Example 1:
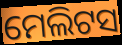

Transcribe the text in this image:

ମେଲିଟସ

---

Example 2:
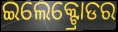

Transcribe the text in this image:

ଇଲେକ୍ଟ୍ରୋଡର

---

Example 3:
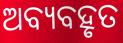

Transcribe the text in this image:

ଅବ୍ୟବହୃତ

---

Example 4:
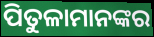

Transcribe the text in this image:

ପିତୁଳାମାନଙ୍କର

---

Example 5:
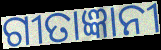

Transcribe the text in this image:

ଗୀତାଜ୍ଞାନୀ